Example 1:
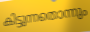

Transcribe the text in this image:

കിട്ടുന്നതൊന്നും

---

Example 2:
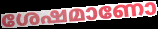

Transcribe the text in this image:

ശേഷമാണോ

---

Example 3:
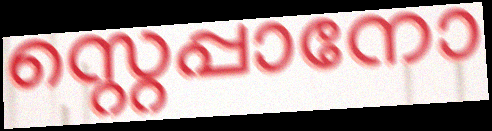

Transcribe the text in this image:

സ്റ്റെപ്പാനോ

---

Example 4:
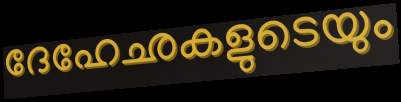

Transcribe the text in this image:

ദേഹേഛകളുടെയും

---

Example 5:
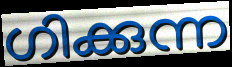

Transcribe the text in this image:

ഗിക്കുന്ന